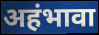
अहंभावा